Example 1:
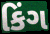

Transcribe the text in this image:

કિંગ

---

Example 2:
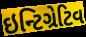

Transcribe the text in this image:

ઇન્ટિગ્રેટિવ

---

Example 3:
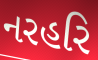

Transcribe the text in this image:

નરહરિ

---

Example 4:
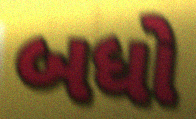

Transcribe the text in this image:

બધો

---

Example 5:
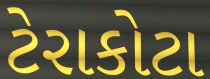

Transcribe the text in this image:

ટેરાકોટા